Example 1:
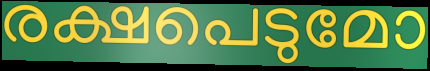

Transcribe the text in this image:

രക്ഷപെടുമോ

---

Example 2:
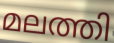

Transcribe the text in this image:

മലത്തി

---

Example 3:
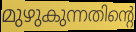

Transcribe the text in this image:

മുഴുകുന്നതിന്റെ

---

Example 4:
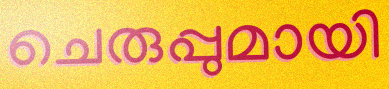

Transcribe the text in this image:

ചെരുപ്പുമായി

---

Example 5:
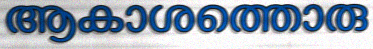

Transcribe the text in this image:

ആകാശത്തൊരു